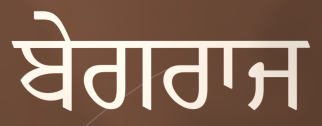
ਬੇਗਰਾਜ